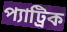
প্যাট্রিক